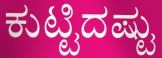
ಕುಟ್ಟಿದಷ್ಟು